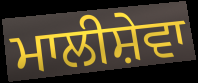
ਮਾਲੀਸ਼ੇਵਾ